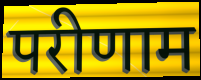
परीणाम